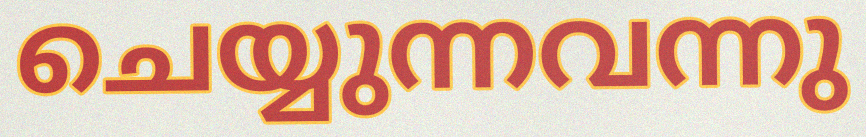
ചെയ്യുന്നവന്നു